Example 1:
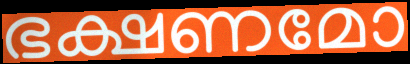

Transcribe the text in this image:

ഭക്ഷണമോ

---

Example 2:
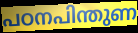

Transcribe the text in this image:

പഠനപിന്തുണ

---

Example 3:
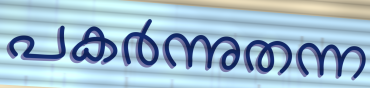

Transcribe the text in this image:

പകർന്നുതന്ന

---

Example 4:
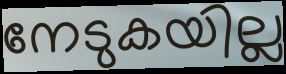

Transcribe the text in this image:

നേടുകയില്ല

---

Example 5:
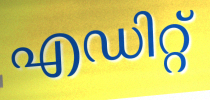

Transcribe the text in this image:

എഡിറ്റ്